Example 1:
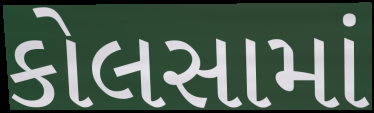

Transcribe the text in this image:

કોલસામાં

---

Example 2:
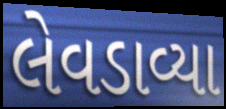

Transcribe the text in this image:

લેવડાવ્યા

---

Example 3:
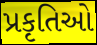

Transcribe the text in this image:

પ્રકૃતિઓ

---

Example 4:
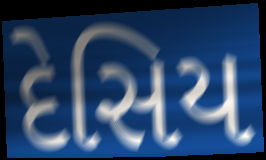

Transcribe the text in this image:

દેસિય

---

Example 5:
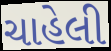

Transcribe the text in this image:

ચાહેલી